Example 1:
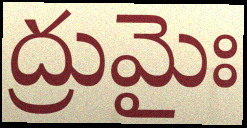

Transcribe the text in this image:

ద్రుమైః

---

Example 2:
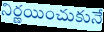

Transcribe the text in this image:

నిర్ణయించుకునే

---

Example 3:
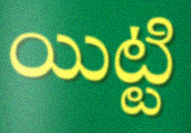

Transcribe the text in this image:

యిట్టి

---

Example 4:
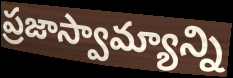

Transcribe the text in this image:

ప్రజాస్వామ్యాన్ని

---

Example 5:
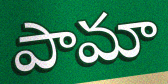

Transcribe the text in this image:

పామా